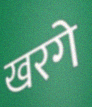
खरगे